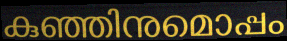
കുഞ്ഞിനുമൊപ്പം